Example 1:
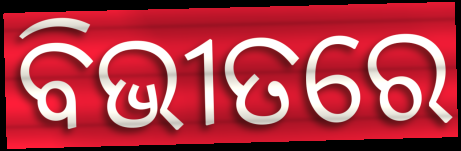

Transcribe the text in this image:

ବିଭୀତରେ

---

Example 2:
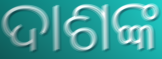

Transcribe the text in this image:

ଦାଶଙ୍କ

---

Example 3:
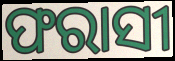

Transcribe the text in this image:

ଫରାସୀ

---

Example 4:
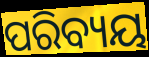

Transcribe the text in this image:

ପରିବ୍ୟୟ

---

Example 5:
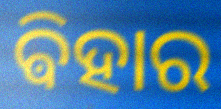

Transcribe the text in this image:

ଵିହାର